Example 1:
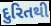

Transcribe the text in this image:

દુરિતથી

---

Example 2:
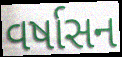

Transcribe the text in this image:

વર્ષાસન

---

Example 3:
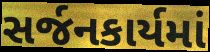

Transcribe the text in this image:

સર્જનકાર્યમાં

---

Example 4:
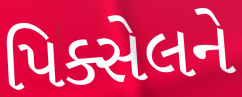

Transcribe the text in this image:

પિક્સેલને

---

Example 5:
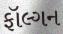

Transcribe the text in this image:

ફૉલ્ગન